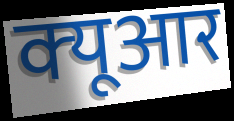
क्‍यूआर